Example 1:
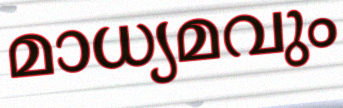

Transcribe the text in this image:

മാധ്യമവും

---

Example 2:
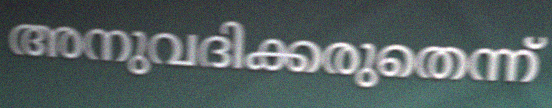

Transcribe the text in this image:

അനുവദിക്കരുതെന്ന്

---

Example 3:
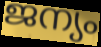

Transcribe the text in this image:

ജന്യം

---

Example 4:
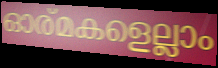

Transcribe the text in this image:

ഓര്മകളെല്ലാം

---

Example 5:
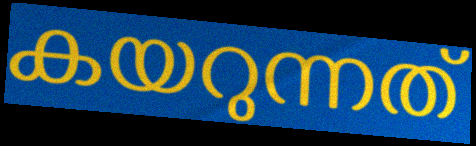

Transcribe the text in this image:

കയറുന്നത്